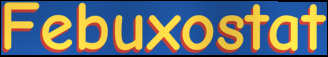
Febuxostat